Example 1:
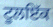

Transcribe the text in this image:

ਟੂਲਇੱਕ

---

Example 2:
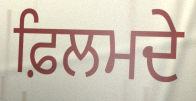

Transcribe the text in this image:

ਫ਼ਿਲਮਦੇ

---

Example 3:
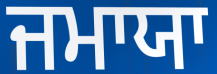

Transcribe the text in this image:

ਜਮਾਯਾ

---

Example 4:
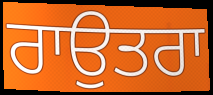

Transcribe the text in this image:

ਰਾਉਤਰਾ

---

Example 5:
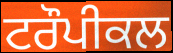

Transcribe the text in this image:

ਟਰੌਪੀਕਲ